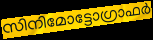
സിനിമോട്ടോഗ്രാഫർ